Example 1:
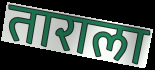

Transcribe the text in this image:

ताराला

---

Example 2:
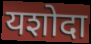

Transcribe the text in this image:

यशोदा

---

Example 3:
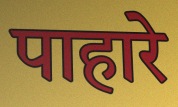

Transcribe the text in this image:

पाहारे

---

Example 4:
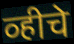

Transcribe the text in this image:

व्हीचे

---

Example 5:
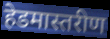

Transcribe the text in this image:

हेडमास्तरीण